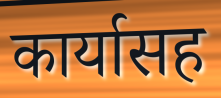
कार्यासह